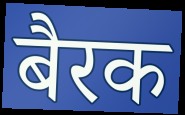
बैरक